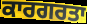
ਕਾਰਗਰਤਾ